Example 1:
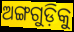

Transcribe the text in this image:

ଅଙ୍ଗଗୁଡ଼ିକୁ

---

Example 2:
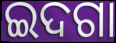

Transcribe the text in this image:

ଇଦଗା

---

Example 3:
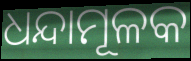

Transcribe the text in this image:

ଧନ୍ଦାମୂଳକ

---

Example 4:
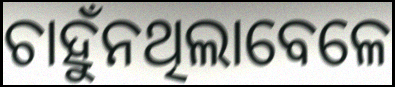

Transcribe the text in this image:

ଚାହୁଁନଥିଲାବେଳେ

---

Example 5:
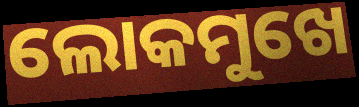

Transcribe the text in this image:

ଲୋକମୁଖେ